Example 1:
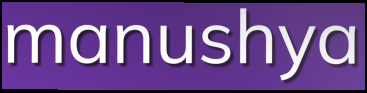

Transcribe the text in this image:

manushya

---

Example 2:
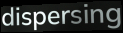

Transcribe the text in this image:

dispersing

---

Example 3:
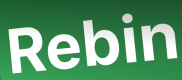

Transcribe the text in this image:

Rebin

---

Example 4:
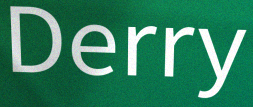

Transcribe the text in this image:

Derry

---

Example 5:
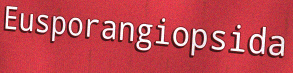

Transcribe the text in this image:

Eusporangiopsida